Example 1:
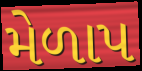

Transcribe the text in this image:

મેળાપ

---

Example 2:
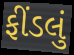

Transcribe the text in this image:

ફીંડલું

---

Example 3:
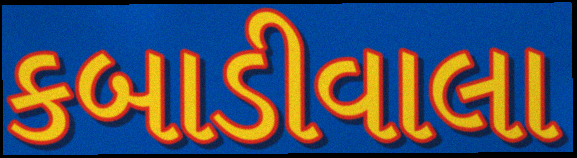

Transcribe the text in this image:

કબાડીવાલા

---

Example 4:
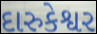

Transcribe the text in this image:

દારુકેશ્વર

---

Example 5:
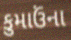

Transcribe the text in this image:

કુમાઉંના